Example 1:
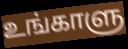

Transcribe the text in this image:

உங்காளு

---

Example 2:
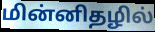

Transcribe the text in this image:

மின்னிதழில்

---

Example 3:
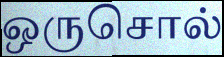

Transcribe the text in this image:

ஒருசொல்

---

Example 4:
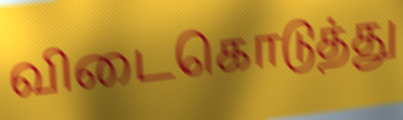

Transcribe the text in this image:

விடைகொடுத்து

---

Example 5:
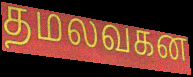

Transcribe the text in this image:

தமலவகன